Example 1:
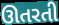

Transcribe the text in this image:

ઊતરતી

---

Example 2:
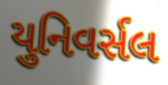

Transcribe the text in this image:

યુનિવર્સલ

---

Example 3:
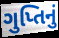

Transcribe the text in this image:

ગુપ્તિનું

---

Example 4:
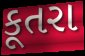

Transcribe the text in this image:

કૂતરા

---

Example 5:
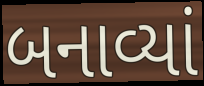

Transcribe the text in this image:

બનાવ્યાં